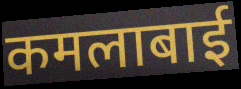
कमलाबाई